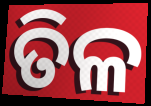
ତିଳ